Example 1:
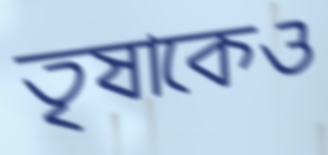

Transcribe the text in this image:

তৃষাকেও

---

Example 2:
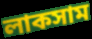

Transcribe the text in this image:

লাকসাম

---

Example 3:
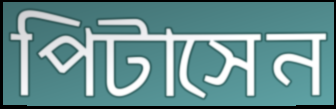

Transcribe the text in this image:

পিটাসেন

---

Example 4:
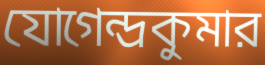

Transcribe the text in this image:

যোগেন্দ্রকুমার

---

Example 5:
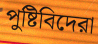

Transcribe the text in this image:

পুষ্টিবিদেরা